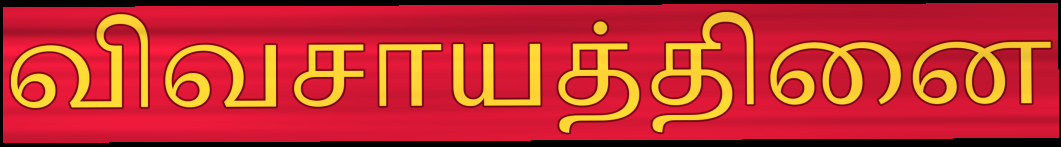
விவசாயத்தினை